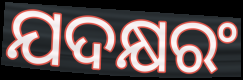
ଯଦକ୍ଷରଂ